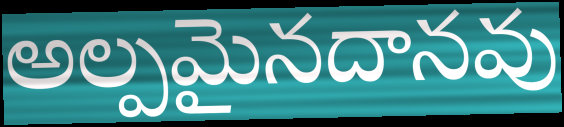
అల్పమైనదానవు